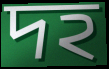
দহ